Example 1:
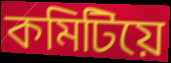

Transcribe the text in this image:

কমিটিয়ে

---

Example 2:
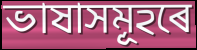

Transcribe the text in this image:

ভাষাসমূহৰে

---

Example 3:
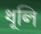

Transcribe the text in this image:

ধূলি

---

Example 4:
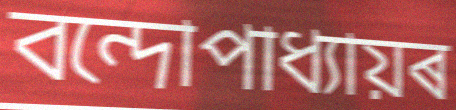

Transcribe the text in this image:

বন্দোপাধ্যায়ৰ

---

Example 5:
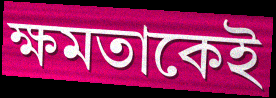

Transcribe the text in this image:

ক্ষমতাকেই